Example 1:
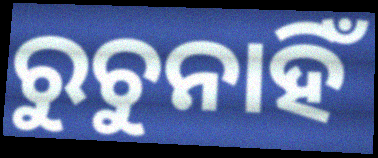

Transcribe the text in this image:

ରୁଚୁନାହିଁ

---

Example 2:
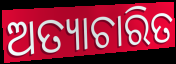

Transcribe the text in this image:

ଅତ୍ୟାଚାରିତ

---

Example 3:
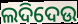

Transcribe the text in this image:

ଲଦିଦେଉ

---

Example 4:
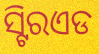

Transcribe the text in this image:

ସ୍ଟିରଏଡ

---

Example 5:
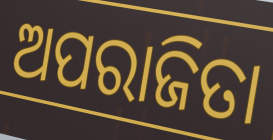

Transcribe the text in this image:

ଅପରାଜିତା